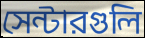
সেন্টারগুলি